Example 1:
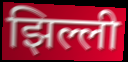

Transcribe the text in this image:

झिल्ली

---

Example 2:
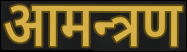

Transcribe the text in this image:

आमन्त्रण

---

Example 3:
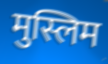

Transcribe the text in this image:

मुस्लिम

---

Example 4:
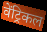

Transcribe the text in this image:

वेंट्रिकल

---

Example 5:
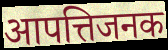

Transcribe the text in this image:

आपत्तिजनक